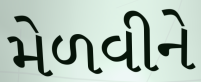
મેળવીને